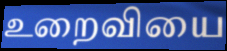
உறைவியை